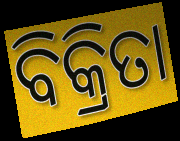
ବିକ୍ରିତା